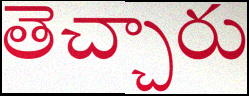
తెచ్చారు